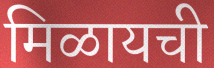
मिळायची